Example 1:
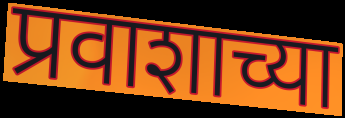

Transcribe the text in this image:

प्रवाशाच्या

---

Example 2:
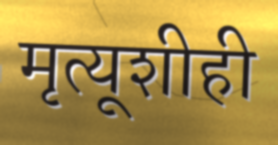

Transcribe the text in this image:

मृत्यूशीही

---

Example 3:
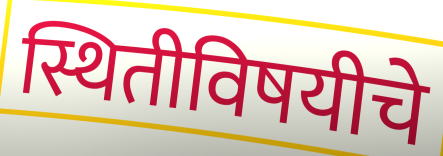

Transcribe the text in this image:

स्थितीविषयीचे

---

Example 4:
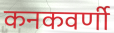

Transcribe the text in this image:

कनकवर्णी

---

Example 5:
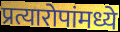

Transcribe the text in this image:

प्रत्यारोपांमध्ये